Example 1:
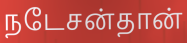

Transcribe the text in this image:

நடேசன்தான்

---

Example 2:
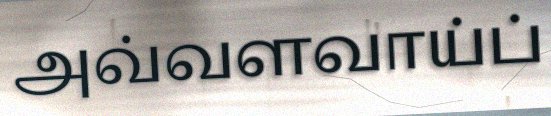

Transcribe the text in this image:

அவ்வளவாய்ப்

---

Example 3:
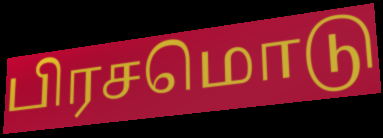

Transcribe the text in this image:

பிரசமொடு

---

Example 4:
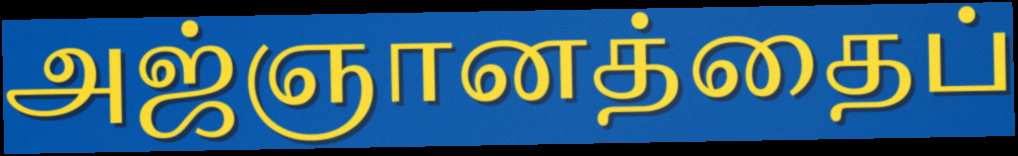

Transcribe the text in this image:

அஜ்ஞானத்தைப்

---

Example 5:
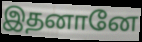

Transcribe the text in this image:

இதனானே